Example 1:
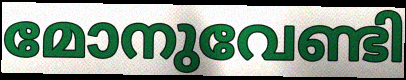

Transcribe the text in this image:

മോനുവേണ്ടി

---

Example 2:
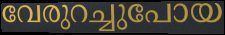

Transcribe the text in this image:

വേരുറച്ചുപോയ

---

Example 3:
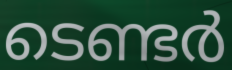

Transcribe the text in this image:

ടെണ്ടർ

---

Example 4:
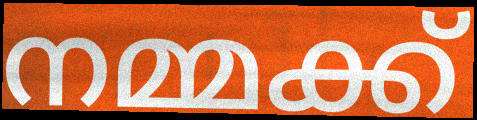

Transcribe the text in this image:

നമ്മക്ക്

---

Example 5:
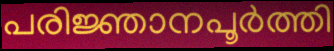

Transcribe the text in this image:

പരിജ്ഞാനപൂർത്തി